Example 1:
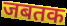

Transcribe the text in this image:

जबतक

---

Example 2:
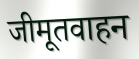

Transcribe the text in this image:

जीमूतवाहन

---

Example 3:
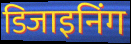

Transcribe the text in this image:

डिजाइनिंग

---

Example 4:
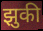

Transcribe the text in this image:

झुकी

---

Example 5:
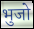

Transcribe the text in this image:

भुजो